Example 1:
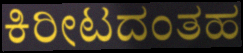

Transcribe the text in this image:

ಕಿರೀಟದಂತಹ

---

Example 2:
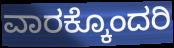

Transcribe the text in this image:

ವಾರಕ್ಕೊಂದರಿ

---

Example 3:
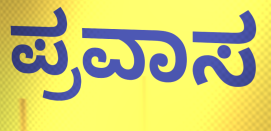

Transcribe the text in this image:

ಪ್ರವಾಸ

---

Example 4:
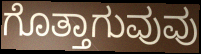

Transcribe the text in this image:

ಗೊತ್ತಾಗುವುವು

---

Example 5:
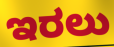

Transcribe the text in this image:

ಇರಲು